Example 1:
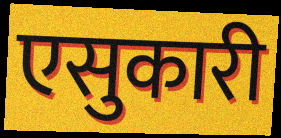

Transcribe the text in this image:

एसुकारी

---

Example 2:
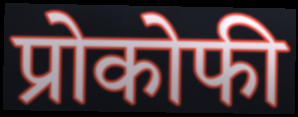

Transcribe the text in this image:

प्रोकोफी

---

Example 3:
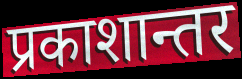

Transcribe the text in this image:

प्रकाशान्तर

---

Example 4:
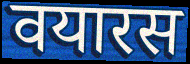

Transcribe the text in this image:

वयारस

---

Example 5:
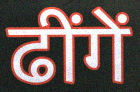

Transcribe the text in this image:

ढींगें